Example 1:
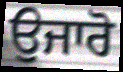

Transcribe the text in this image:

ਉਜਾਰੋ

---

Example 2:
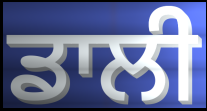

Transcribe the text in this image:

ਡਾਲੀ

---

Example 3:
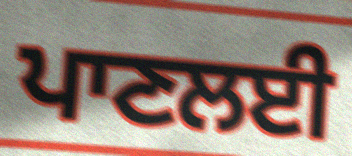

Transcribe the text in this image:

ਪਾਣਲਈ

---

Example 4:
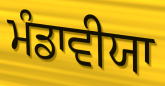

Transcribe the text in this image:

ਮੰਡਾਵੀਯਾ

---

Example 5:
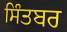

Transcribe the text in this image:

ਸਿੰਤਬਰ